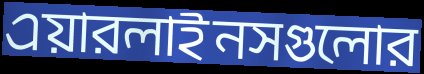
এয়ারলাইনসগুলোর